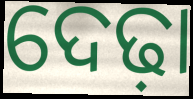
ଦେଢ଼ା